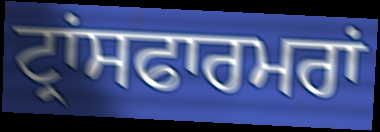
ਟ੍ਰਾਂਸਫਾਰਮਰਾਂ